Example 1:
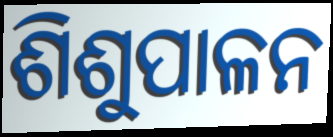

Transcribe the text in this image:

ଶିଶୁପାଳନ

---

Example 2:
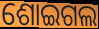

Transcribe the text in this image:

ଶୋଇଗଲ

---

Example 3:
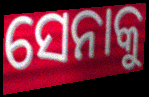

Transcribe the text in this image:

ସେନାକୁ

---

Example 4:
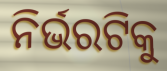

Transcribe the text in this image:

ନିର୍ଭରଟିକୁ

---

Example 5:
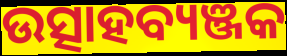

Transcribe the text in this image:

ଉତ୍ସାହବ୍ୟଞ୍ଜକ